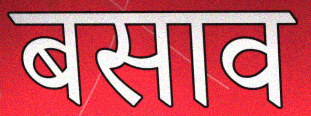
बसाव